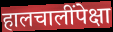
हालचालींपेक्षा